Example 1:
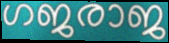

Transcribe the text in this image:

ഗജരാജ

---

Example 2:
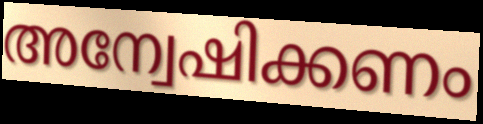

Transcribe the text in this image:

അന്വേഷിക്കണം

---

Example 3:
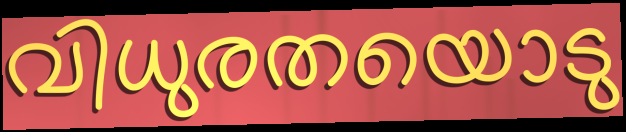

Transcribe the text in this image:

വിധുരതയൊടു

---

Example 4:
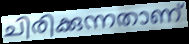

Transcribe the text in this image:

ചിരിക്കുന്നതാണ്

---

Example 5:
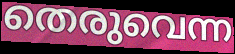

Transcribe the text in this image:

തെരുവെന്ന